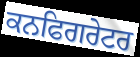
ਕਨਫਿਗਰੇਟਰ